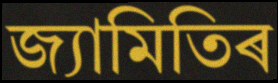
জ্যামিতিৰ